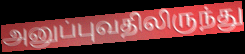
அனுப்புவதிலிருந்து